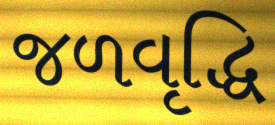
જળવૃદ્ધિ